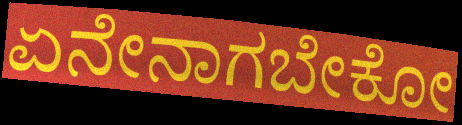
ಏನೇನಾಗಬೇಕೋ